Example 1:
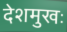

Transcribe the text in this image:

देशमुखः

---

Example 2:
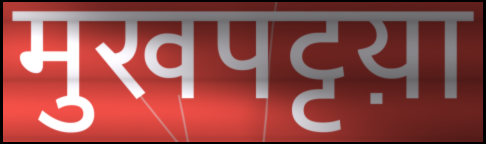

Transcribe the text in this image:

मुखपट्टय़ा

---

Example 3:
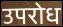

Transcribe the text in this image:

उपरोध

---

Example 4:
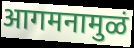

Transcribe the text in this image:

आगमनामुळं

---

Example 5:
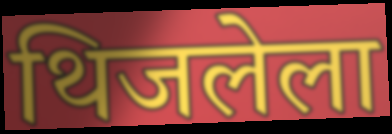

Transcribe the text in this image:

थिजलेला